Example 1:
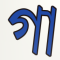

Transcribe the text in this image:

গা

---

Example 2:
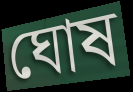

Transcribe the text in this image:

ঘোষ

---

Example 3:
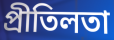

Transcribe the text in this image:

প্ৰীতিলতা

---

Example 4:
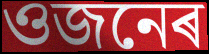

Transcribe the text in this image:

ওজনেৰ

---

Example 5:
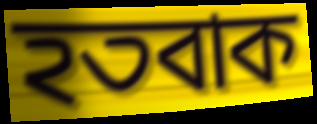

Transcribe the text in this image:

হতবাক